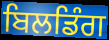
ਬਿਲਡਿੰਗ